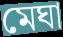
মেঘা